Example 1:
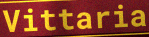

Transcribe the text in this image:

Vittaria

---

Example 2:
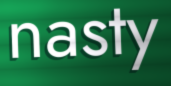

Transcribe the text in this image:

nasty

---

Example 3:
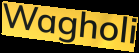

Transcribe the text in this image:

Wagholi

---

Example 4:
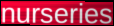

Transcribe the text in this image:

nurseries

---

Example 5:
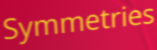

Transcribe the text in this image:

Symmetries